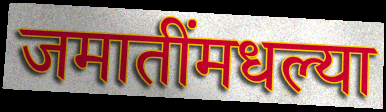
जमातींमधल्या